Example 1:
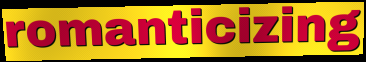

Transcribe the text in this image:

romanticizing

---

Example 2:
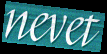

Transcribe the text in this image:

nevet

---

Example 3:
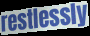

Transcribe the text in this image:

restlessly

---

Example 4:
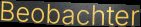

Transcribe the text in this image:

Beobachter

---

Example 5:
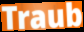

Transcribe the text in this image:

Traub